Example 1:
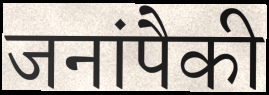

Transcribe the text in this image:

जनांपैकी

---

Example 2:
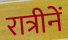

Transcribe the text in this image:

रात्रीनें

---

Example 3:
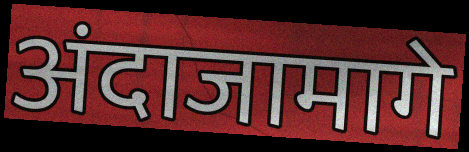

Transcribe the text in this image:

अंदाजामागे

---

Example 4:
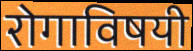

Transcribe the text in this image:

रोगाविषयी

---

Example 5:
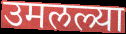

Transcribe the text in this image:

उमलल्या